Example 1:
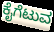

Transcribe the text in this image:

ಕೈಗೆಟುವ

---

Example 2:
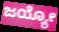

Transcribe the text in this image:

ಜಯ್ಯೋ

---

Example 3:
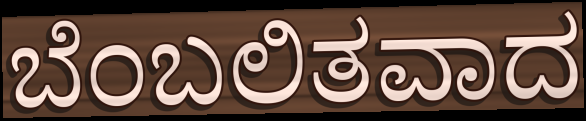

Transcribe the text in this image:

ಬೆಂಬಲಿತವಾದ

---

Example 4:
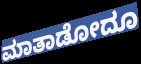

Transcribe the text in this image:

ಮಾತಾಡೋದೂ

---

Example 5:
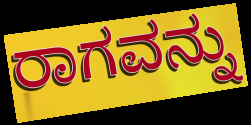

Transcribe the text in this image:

ರಾಗವನ್ನು